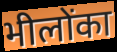
भीलोंका